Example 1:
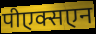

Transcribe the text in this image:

पीएक्सएन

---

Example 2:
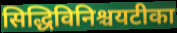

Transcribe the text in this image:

सिद्धिविनिश्चयटीका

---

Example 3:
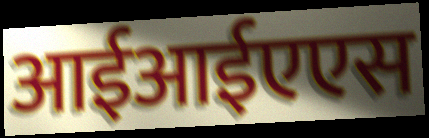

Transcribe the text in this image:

आईआईएएस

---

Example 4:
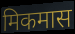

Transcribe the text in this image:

मिकमास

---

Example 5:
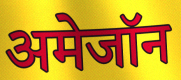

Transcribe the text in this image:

अमेजॉन